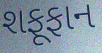
શફૂફાન